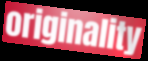
originality